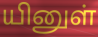
யினுள்